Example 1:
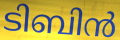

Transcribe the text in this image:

ടിബിൻ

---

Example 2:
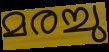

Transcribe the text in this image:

മരച്ചു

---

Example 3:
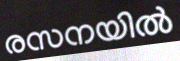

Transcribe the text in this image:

രസനയിൽ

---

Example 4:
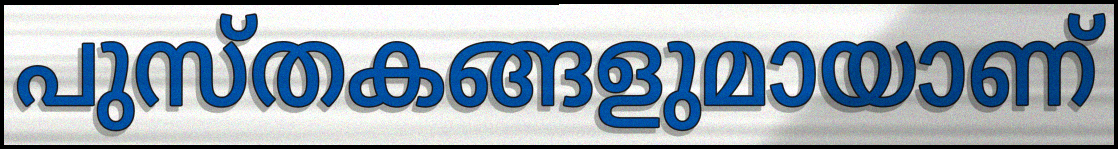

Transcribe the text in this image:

പുസ്തകങ്ങളുമായാണ്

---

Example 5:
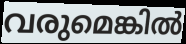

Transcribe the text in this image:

വരുമെങ്കിൽ